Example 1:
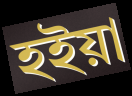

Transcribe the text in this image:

হইয়া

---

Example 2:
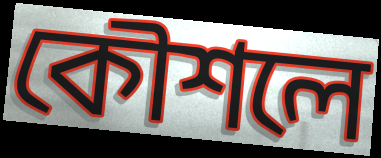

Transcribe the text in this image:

কৌশলে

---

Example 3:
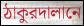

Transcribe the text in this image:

ঠাকুরদালানে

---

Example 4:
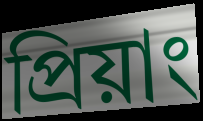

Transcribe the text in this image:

প্রিয়াং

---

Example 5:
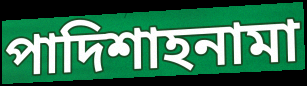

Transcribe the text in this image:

পাদিশাহনামা